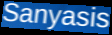
Sanyasis